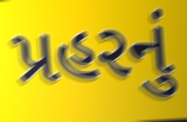
પ્રહરનું